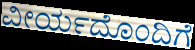
ವೀರ್ಯದೊಂದಿಗೆ